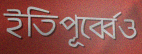
ইতিপূর্ব্বেও